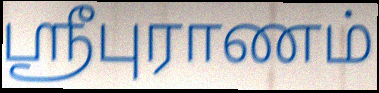
ஸ்ரீபுராணம்